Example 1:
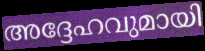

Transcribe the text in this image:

അദ്ദേഹവുമായി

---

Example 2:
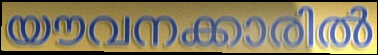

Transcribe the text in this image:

യൗവനക്കാരിൽ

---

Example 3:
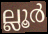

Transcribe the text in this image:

ല്ലൂർ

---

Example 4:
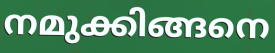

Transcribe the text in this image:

നമുക്കിങ്ങനെ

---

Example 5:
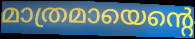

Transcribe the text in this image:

മാത്രമായെന്റെ